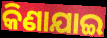
କିଣାଯାଇ